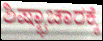
ಶಿಷ್ಟಾಚಾರಕ್ಕೆ